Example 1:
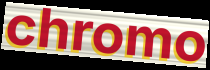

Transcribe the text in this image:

chromo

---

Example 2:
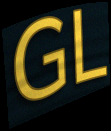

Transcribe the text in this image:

GL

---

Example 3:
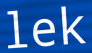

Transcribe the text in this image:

lek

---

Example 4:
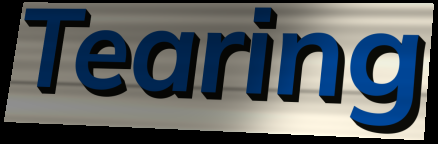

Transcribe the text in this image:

Tearing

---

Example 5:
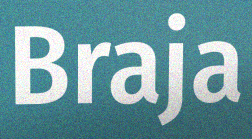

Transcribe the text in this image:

Braja